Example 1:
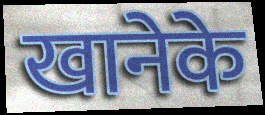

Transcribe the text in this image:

खानेके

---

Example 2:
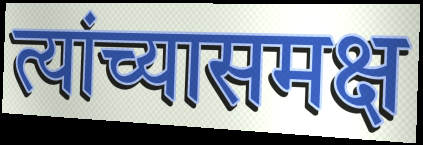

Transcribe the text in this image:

त्यांच्यासमक्ष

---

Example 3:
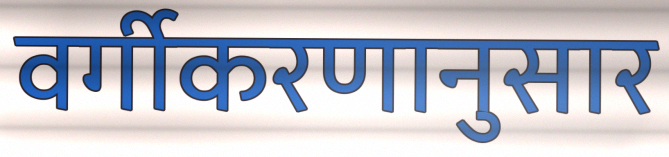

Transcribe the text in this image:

वर्गीकरणानुसार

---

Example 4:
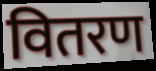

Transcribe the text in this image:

वितरण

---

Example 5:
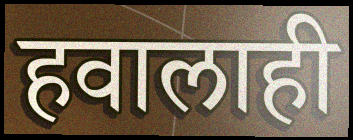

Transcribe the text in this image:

हवालाही